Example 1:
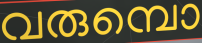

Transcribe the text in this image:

വരുമ്പൊ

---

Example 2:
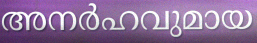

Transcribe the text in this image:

അനർഹവുമായ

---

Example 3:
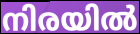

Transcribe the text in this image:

നിരയിൽ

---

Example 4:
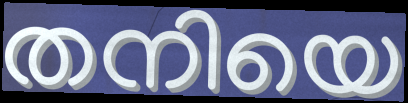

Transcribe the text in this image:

തനിയെ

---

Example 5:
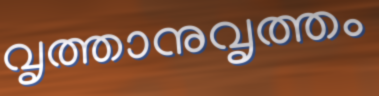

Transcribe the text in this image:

വൃത്താനുവൃത്തം